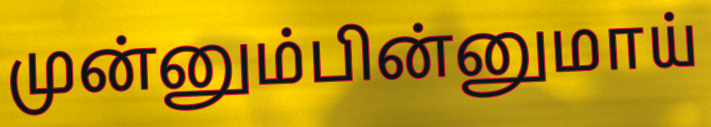
முன்னும்பின்னுமாய்